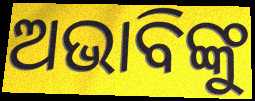
ଅଭାବିଙ୍କୁ